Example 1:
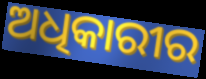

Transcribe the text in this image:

ଅଧିକାରୀର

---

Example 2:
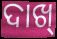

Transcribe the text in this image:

ଦାଖ୍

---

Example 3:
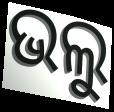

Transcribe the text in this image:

ଭଲୁ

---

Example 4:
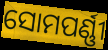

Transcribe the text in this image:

ସୋମପର୍ଣ୍ଣୀ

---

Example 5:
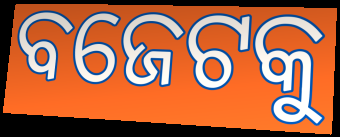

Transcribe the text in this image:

ବଜେଟକୁ